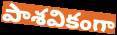
పాశవికంగా